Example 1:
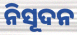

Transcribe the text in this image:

ନିସୂଦନ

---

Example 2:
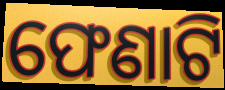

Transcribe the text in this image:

ଫେଣାଟି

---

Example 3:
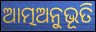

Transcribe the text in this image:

ଆତ୍ମଅନୁଭୂତି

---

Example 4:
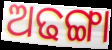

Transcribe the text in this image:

ଅଢଙ୍ଗା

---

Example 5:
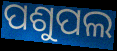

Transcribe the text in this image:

ପଶୁପଲ